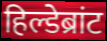
हिल्डेब्रांट